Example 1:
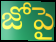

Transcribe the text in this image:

జోపై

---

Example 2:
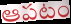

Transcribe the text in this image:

ఆపటం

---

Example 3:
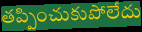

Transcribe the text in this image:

తప్పించుకుపోలేదు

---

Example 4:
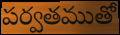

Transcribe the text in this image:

పర్వతముతో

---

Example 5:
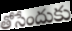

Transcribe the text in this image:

తోసేందుకు